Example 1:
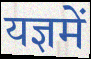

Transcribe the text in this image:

यज्ञमें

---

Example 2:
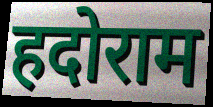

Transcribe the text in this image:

हदोराम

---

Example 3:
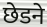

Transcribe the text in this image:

छेडने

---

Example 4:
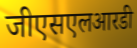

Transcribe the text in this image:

जीएसएलआरडी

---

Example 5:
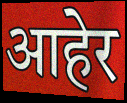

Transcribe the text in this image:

आहेर